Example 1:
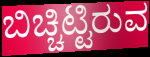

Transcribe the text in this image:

ಬಿಚ್ಚಿಟ್ಟಿರುವ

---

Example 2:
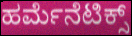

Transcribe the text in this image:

ಹರ್ಮೆನೆಟಿಕ್ಸ್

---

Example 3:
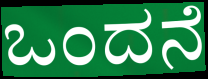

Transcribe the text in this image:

ಒಂದನೆ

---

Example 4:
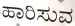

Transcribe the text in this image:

ಹಾರಿಸುವ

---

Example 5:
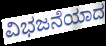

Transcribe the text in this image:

ವಿಭಜನೆಯಾದ